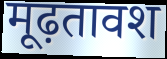
मूढ़तावश